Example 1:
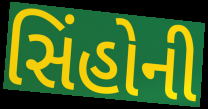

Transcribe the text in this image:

સિંહોની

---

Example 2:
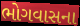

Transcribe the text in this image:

ભોગવાસના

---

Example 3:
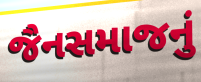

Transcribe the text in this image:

જૈનસમાજનું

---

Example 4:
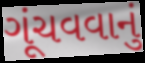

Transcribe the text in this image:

ગૂંચવવાનું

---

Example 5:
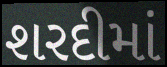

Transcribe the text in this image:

શરદીમાં